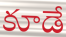
కూడే